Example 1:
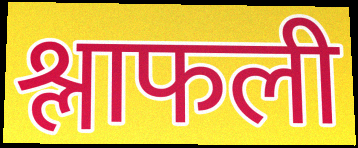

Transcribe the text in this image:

श्लाफली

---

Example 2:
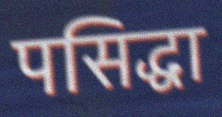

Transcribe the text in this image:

पसिद्धा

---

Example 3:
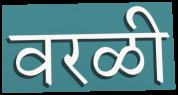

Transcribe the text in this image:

वरळी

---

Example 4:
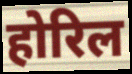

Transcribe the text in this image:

होरिल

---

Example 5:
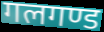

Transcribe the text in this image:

गलगण्ड